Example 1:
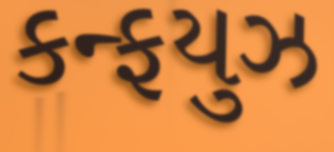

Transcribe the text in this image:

કન્ફયુઝ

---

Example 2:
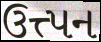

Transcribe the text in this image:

ઉત્ત્પન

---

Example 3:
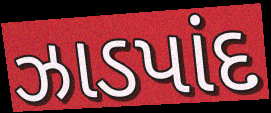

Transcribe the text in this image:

ઝાડપાંદ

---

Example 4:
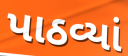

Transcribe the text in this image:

પાઠવ્યાં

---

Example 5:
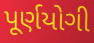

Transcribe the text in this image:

પૂર્ણયોગી